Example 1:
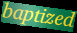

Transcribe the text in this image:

baptized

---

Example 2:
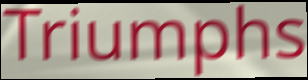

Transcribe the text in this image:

Triumphs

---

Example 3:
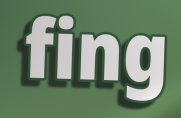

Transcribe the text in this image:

fing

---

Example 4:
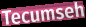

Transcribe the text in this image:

Tecumseh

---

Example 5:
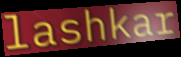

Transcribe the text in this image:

lashkar